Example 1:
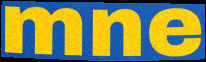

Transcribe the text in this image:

mne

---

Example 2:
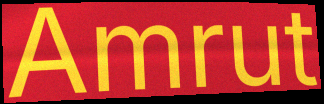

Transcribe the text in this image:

Amrut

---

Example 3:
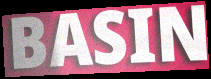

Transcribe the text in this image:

BASIN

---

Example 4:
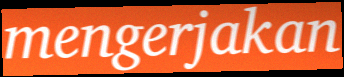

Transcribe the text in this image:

mengerjakan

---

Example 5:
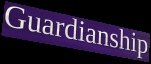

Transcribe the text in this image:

Guardianship